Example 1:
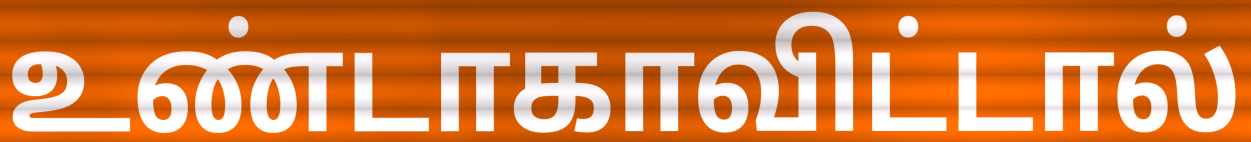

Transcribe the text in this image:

உண்டாகாவிட்டால்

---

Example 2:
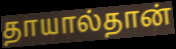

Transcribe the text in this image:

தாயால்தான்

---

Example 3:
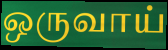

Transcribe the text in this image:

ஒருவாய்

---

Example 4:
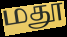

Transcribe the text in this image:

மதூ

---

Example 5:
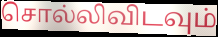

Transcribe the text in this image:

சொல்லிவிடவும்